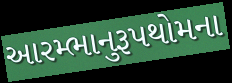
આરમ્ભાનુરૂપથોમના